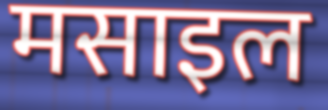
मसाइल